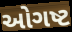
ઓગષ્ટ